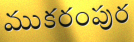
ముకరంపుర